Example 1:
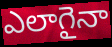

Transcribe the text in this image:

ఎలాగైనా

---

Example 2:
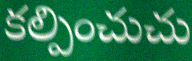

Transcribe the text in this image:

కల్పించుచు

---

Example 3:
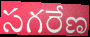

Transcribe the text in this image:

సగరేణ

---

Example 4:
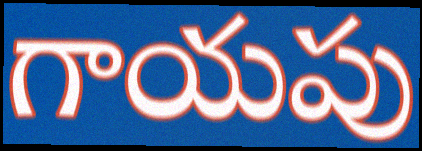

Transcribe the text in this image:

గాయపు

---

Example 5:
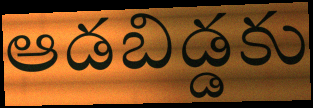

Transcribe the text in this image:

ఆడబిడ్డకు